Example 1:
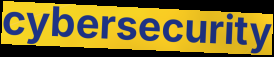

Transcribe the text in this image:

cybersecurity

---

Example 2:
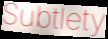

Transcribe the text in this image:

Subtlety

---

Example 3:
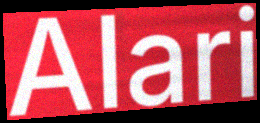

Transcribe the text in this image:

Alari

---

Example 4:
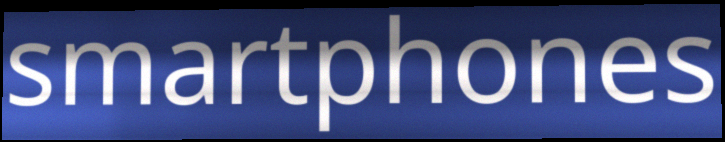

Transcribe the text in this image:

smartphones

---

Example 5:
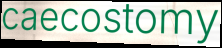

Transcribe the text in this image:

caecostomy